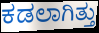
ಕಡಲಾಗಿತ್ತು